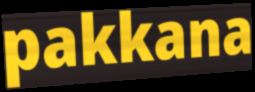
pakkana